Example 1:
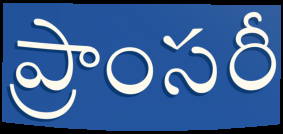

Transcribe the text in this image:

ప్రాంసరీ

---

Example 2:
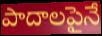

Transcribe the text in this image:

పాదాలపైనే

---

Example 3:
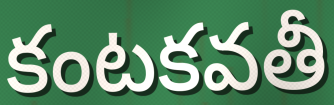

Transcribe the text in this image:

కంటకవతీ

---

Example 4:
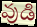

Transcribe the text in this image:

వుడి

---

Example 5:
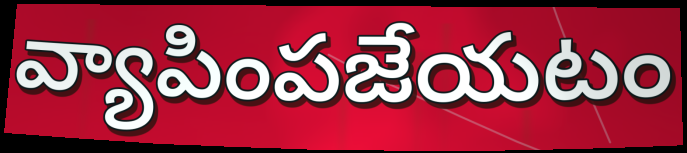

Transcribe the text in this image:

వ్యాపింపజేయటం